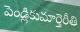
పెండ్లికుమార్తెరీతి